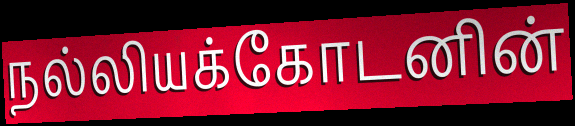
நல்லியக்கோடனின்